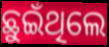
ଛୁଇଁଥିଲେ